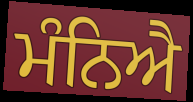
ਮੰਨਿਐ